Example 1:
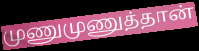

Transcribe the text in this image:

முணுமுணுத்தான்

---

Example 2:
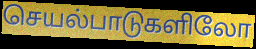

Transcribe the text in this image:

செயல்பாடுகளிலோ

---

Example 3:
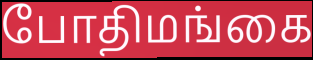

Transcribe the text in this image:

போதிமங்கை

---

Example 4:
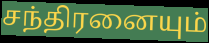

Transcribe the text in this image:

சந்திரனையும்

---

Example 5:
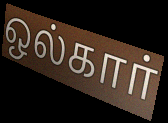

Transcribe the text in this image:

ஒல்கார்